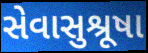
સેવાસુશ્રૂષા